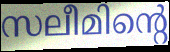
സലീമിന്റെ